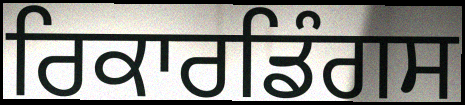
ਰਿਕਾਰਡਿੰਗਸ